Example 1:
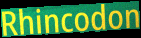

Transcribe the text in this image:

Rhincodon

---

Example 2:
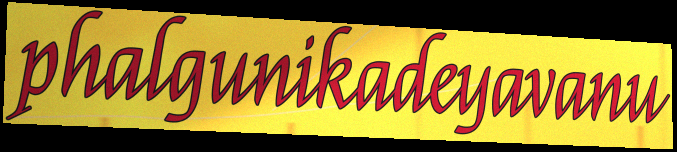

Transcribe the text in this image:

phalgunikadeyavanu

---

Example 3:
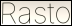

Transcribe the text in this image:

Rasto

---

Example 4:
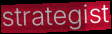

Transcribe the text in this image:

strategist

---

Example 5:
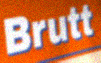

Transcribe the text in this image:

Brutt